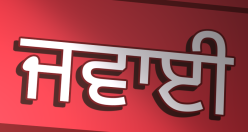
ਜਵਾਈ